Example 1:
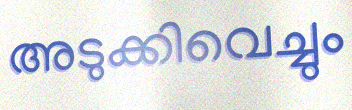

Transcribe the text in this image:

അടുക്കിവെച്ചും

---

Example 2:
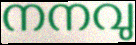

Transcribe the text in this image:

നനവു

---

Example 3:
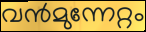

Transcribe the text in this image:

വൻമുന്നേറ്റം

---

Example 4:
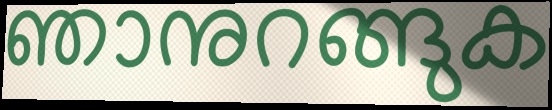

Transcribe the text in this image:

ഞാനുറങ്ങുക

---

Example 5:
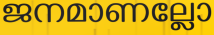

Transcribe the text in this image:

ജനമാണല്ലോ